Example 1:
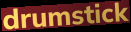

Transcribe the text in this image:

drumstick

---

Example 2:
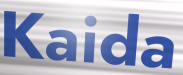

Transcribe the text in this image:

Kaida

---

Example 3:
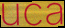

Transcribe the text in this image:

uca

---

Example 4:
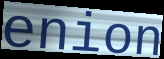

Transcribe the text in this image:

enion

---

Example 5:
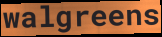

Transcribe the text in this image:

walgreens